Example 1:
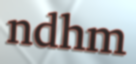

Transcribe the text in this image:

ndhm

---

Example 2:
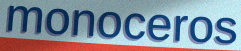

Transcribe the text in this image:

monoceros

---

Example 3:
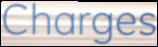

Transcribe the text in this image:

Charges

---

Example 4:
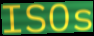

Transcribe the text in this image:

ISOs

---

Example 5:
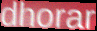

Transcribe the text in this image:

dhorar